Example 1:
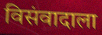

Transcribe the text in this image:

विसंवादाला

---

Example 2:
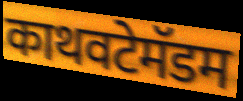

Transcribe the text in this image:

काथवटेमॅडम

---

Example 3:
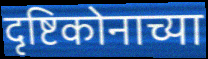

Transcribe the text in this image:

दृष्टिकोनाच्या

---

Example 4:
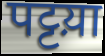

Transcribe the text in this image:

पट्टय़ा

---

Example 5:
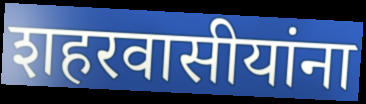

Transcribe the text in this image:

शहरवासीयांना